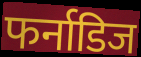
फर्नाडिज